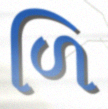
ળિ